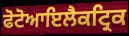
ਫੋਟੋਆਇਲੈਕਟ੍ਰਿਕ